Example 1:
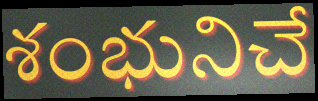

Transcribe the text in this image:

శంభునిచే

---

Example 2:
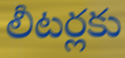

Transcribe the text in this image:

లీటర్లకు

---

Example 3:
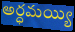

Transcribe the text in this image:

అర్ధమయ్యి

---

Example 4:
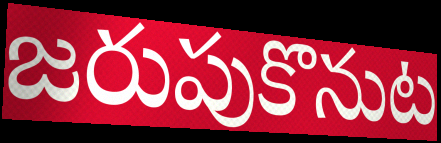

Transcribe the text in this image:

జరుపుకొనుట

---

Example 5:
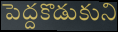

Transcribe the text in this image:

పెద్దకొడుకుని